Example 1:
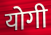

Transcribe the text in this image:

योगी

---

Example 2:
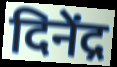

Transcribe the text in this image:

दिनेंद्र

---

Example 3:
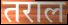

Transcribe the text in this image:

तराल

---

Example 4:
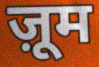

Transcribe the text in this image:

ज़ूम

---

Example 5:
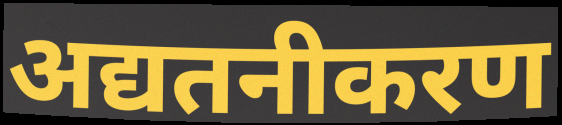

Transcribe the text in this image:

अद्यतनीकरण